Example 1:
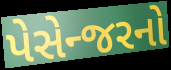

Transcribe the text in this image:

પેસેન્જરનો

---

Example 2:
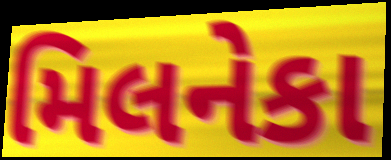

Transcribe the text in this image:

મિલનેકા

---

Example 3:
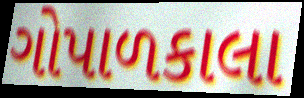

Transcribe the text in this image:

ગોપાળકાલા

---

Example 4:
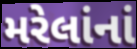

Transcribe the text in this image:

મરેલાંનાં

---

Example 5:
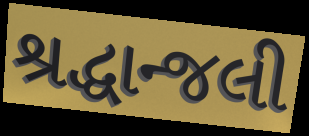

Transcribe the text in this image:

શ્રદ્ધાન્જલી